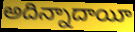
అదిన్నాదాయీ